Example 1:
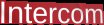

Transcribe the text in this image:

Intercom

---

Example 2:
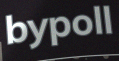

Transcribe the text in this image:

bypoll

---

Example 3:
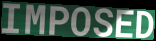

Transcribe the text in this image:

IMPOSED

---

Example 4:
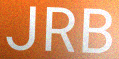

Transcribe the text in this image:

JRB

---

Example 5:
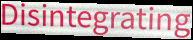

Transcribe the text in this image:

Disintegrating